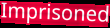
Imprisoned